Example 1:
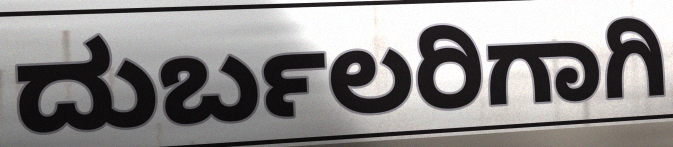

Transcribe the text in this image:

ದುರ್ಬಲರಿಗಾಗಿ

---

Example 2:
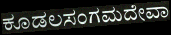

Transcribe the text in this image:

ಕೂಡಲಸಂಗಮದೇವಾ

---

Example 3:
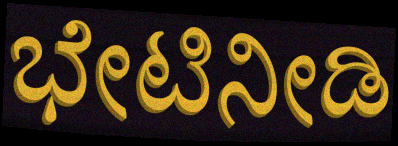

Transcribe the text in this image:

ಭೇಟಿನೀಡಿ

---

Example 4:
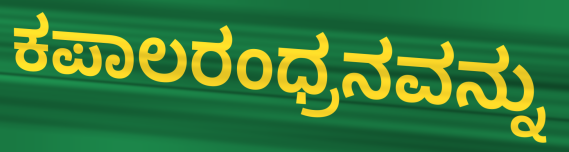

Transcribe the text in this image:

ಕಪಾಲರಂಧ್ರನವನ್ನು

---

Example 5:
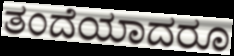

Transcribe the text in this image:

ತಂದೆಯಾದರೂ